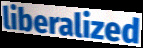
liberalized